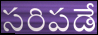
సరిపడే